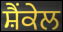
ਸ਼ੈਂਕੇਲ